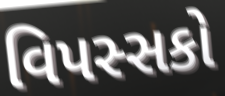
વિપસ્સકો